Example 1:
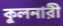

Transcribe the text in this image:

কুলনারী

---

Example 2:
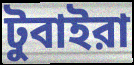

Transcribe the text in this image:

টুবাইরা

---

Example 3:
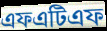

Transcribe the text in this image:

এফএটিএফ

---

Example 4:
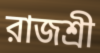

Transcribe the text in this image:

রাজশ্রী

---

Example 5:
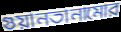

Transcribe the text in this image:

গুয়ানতানামোর